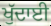
ਖੁੱਦਾਈ